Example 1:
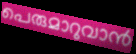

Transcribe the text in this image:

പെരുമാറുവാൻ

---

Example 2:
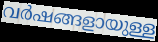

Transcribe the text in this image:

വർഷങ്ങളായുള്ള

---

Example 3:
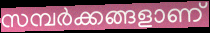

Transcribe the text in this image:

സമ്പർക്കങ്ങളാണ്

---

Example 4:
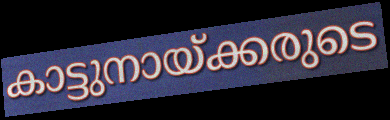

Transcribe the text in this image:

കാട്ടുനായ്ക്കരുടെ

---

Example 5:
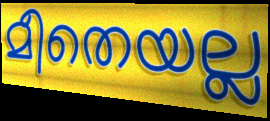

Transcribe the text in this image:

മീതെയല്ല